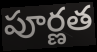
పూర్ణత